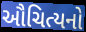
ઔચિત્યનો